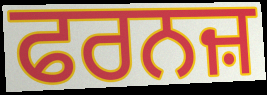
ਫਰਨਜ਼